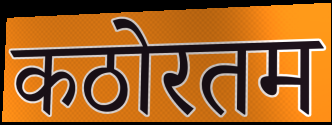
कठोरतम